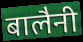
बालैनी